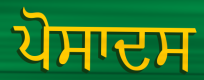
ਪੋਸਾਦਸ